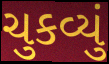
ચુકવ્યું